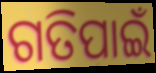
ଗତିପାଇଁ